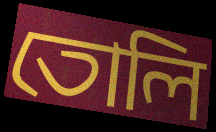
তোলি